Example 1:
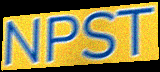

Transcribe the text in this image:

NPST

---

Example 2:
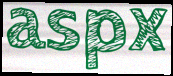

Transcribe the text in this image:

aspx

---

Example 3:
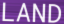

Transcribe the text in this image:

LAND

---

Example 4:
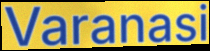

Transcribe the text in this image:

Varanasi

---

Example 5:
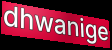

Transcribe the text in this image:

dhwanige